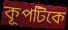
কূপটিকে